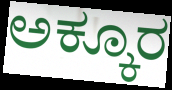
ಅಕ್ಕೂರ